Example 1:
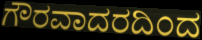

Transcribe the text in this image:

ಗೌರವಾದರದಿಂದ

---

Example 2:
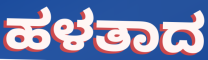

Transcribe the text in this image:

ಹಳತಾದ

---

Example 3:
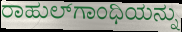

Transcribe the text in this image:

ರಾಹುಲ್‌ಗಾಂಧಿಯನ್ನು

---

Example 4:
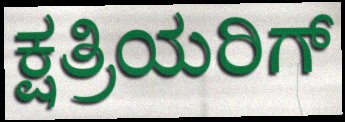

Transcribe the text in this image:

ಕ್ಷತ್ರಿಯರಿಗ್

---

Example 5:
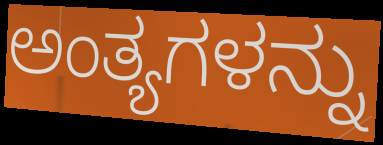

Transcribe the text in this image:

ಅಂತ್ಯಗಳನ್ನು